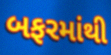
બફરમાંથી